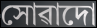
সোৱাদো